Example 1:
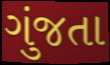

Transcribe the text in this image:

ગુંજતા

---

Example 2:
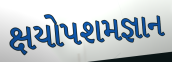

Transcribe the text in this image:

ક્ષયોપશમજ્ઞાન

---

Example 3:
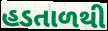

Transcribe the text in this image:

હડતાળથી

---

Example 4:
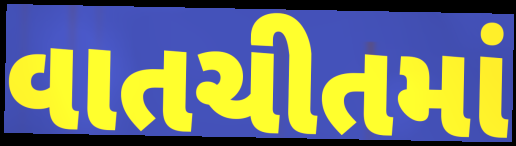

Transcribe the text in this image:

વાતચીતમાં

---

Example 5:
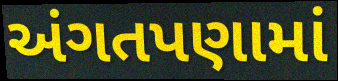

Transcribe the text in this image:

અંગતપણામાં